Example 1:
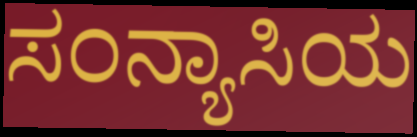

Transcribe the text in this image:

ಸಂನ್ಯಾಸಿಯ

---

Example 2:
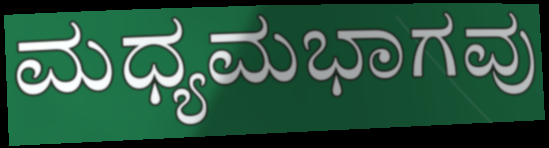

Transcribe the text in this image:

ಮಧ್ಯಮಭಾಗವು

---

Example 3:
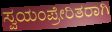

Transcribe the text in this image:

ಸ್ವಯಂಪ್ರೇರಿತರಾಗಿ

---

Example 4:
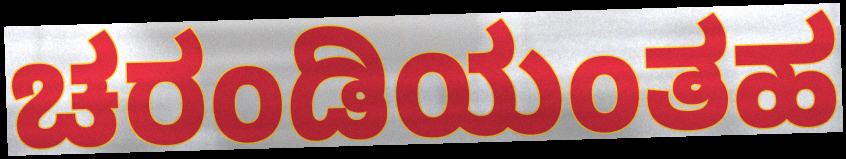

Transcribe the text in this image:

ಚರಂಡಿಯಂತಹ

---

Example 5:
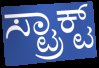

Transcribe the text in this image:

ಸ್ಟ್ರಾಕ್ಟ್